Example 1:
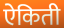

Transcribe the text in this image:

ऐकिती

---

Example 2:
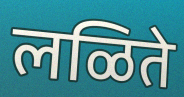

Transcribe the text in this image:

लळिते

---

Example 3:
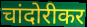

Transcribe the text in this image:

चांदोरीकर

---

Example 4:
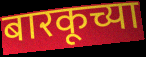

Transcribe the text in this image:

बारकूच्या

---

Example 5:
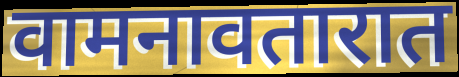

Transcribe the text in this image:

वामनावतारात